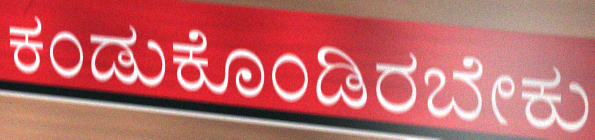
ಕಂಡುಕೊಂಡಿರಬೇಕು